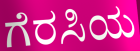
ಗೆರಸಿಯ